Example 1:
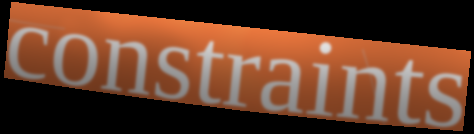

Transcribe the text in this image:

constraints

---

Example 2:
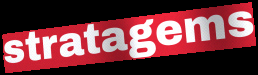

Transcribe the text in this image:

stratagems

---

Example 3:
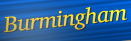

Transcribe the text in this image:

Burmingham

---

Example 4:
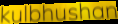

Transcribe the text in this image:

kulbhushan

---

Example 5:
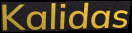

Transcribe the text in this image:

Kalidas